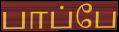
பாப்பே